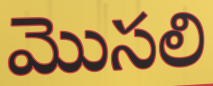
మొసలి